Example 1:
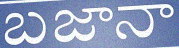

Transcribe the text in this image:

బజానా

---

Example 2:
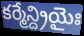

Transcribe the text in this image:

కర్మేన్ద్రియైః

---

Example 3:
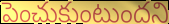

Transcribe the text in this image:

పెంచుకుంటుందని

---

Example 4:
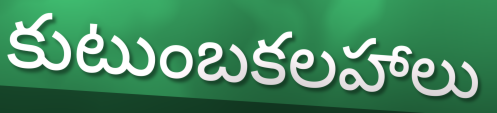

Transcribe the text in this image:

కుటుంబకలహాలు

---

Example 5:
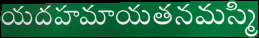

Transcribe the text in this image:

యదహమాయతనమస్మి